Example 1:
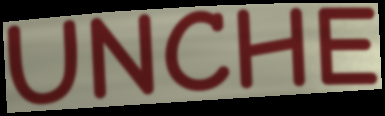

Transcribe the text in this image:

UNCHE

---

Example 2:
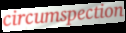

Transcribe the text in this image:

circumspection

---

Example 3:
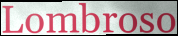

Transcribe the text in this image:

Lombroso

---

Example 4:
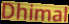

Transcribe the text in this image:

Dhimal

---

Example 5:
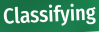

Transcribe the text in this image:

Classifying